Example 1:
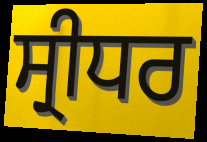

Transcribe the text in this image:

ਸ੍ਰੀਧਰ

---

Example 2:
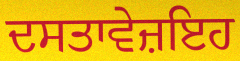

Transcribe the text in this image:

ਦਸਤਾਵੇਜ਼ਇਹ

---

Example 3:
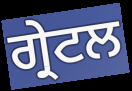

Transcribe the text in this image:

ਗ੍ਰੇਟਲ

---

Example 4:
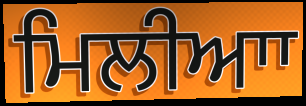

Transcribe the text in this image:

ਮਿਲੀਆਾ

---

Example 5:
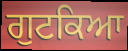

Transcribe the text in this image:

ਗੁਟਕਿਆ